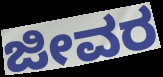
ಜೀವರ